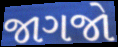
જાગજો